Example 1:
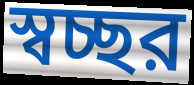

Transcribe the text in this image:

স্বচ্ছর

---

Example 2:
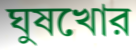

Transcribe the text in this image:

ঘুষখোর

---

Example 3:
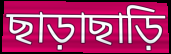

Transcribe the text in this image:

ছাড়াছাড়ি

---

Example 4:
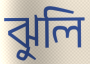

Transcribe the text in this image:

ঝুলি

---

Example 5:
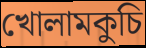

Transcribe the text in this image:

খোলামকুচি